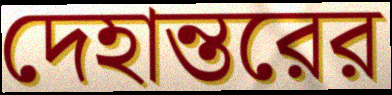
দেহান্তরের